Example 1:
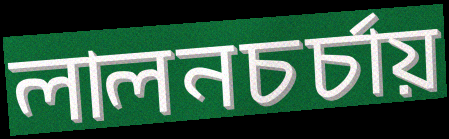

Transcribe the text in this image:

লালনচর্চায়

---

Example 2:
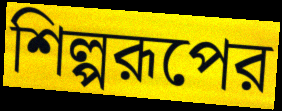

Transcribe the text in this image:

শিল্পরূপের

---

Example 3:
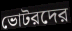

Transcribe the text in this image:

ভোটরদের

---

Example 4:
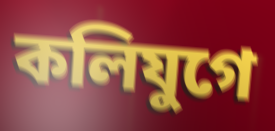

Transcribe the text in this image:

কলিযুগে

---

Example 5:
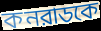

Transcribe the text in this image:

কনরাডকে